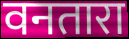
वनतारा